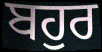
ਬਹੁਰ